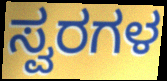
ಸ್ವರಗಳ